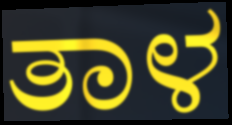
ತಾಳ